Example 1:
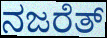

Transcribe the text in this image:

ನಜರೆತ್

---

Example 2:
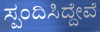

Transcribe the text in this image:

ಸ್ಪಂದಿಸಿದ್ದೇವೆ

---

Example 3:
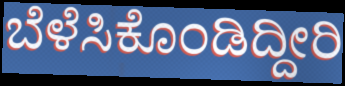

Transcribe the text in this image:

ಬೆಳೆಸಿಕೊಂಡಿದ್ದೀರಿ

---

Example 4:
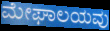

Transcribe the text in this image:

ಮೇಘಾಲಯವು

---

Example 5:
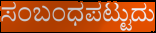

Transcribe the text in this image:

ಸಂಬಂಧಪಟ್ಟುದು